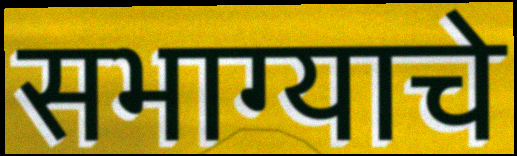
सभाग्याचे